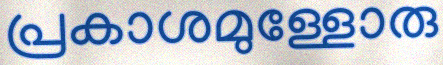
പ്രകാശമുള്ളോരു